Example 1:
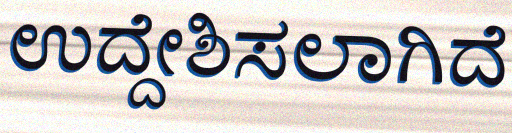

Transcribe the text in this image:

ಉದ್ದೇಶಿಸಲಾಗಿದೆ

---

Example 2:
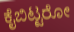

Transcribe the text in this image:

ಕೈಬಿಟ್ಟರೋ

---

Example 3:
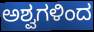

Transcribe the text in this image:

ಅಶ್ವಗಳಿಂದ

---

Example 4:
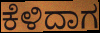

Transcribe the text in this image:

ಕೆಳಿದಾಗ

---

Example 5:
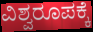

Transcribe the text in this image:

ವಿಶ್ವರೂಪಕ್ಕೆ